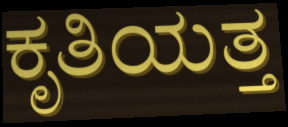
ಕೃತಿಯತ್ತ